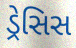
ડ્રેસિસ